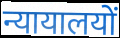
न्यायालयों